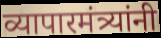
व्यापारमंत्र्यांनी